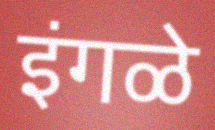
इंगळे